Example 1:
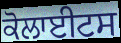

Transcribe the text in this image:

ਕੋਲਾਈਟਸ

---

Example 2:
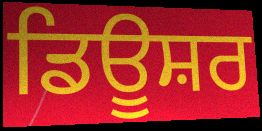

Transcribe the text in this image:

ਡਿਊਸ਼ਰ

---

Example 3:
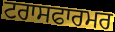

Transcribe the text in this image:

ਟਰਾਸਫਾਰਮਰ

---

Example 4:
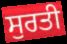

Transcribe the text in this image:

ਸੁਰਤੀ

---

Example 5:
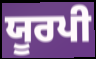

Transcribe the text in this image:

ਯੂਰਪੀ